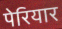
पेरियार